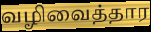
வழிவைத்தார